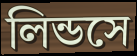
লিন্ডসে